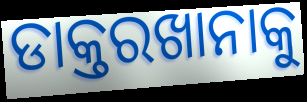
ଡାକ୍ତରଖାନାକୁ